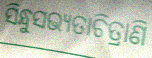
ସିନ୍ଧୁସଭ୍ୟତାଚିତ୍ରାଣି